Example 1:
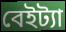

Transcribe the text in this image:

বেইট্যা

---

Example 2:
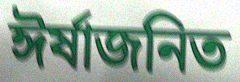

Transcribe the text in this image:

ঈর্ষাজনিত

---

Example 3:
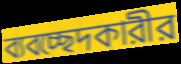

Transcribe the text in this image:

ব্যবচ্ছেদকারীর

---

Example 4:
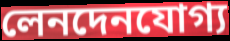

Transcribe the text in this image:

লেনদেনযোগ্য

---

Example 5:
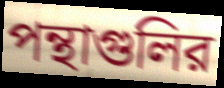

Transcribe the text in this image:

পন্থাগুলির